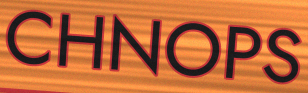
CHNOPS